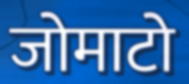
जोमाटो